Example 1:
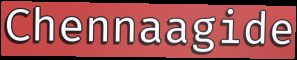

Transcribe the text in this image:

Chennaagide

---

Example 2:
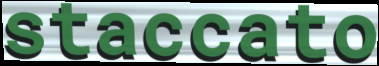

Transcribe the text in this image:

staccato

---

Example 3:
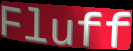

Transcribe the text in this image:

Fluff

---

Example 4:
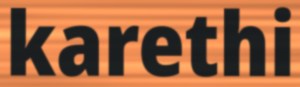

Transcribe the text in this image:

karethi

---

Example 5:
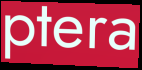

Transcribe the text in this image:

ptera